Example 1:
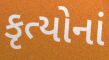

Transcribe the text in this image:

કૃત્યોનાં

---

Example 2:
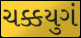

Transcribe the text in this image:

ચક્કયુગં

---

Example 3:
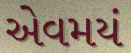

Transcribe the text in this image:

એવમયં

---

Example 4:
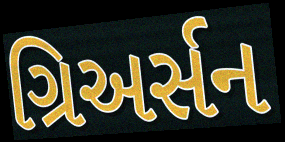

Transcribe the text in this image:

ગ્રિઅર્સન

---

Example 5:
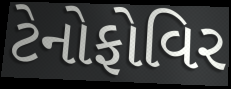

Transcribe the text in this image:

ટેનોફોવિર